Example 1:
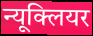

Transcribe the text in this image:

न्‍यूक्‍लियर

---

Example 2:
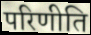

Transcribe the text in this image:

परिणीति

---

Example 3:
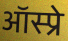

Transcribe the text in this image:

ऑस्प्रे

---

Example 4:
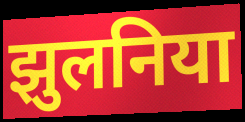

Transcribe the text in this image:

झुलनिया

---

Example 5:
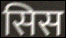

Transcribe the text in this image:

सिस